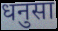
धनुसा